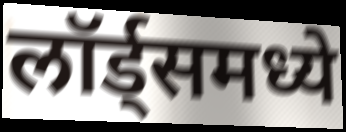
लॉर्ड्समध्ये